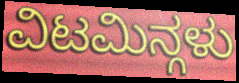
ವಿಟಮಿನ್ಗಳು